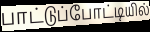
பாட்டுப்போட்டியில்